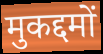
मुकद्दमों